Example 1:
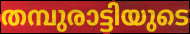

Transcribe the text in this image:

തമ്പുരാട്ടിയുടെ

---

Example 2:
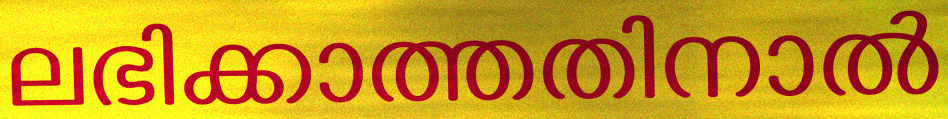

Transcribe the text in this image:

ലഭിക്കാത്തതിനാൽ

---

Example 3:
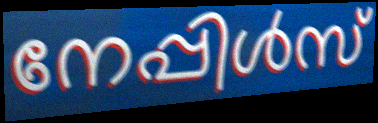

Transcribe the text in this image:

നേപ്പിൾസ്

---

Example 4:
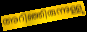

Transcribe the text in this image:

അറിഞ്ഞിരുന്നുള്ളു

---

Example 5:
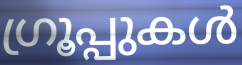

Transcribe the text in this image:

ഗ്രൂപ്പുകൾ